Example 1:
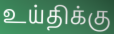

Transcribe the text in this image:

உய்திக்கு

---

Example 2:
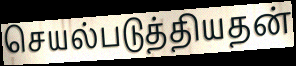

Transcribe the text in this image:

செயல்படுத்தியதன்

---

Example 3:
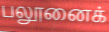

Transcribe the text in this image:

பலூனைக்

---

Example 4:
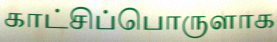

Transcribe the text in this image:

காட்சிப்பொருளாக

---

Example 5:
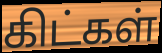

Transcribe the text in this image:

கிட்கள்